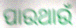
ପାଉଥାଉଁ